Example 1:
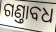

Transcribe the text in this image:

ଗଣ୍ତାବଧ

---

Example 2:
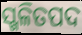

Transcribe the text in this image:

ସ୍ଖଳିତପଦ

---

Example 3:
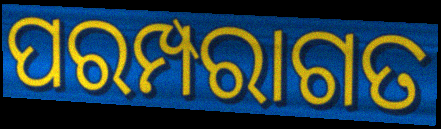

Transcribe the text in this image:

ପରମ୍ପରାଗତ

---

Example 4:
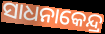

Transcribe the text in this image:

ସାଧନାକେନ୍ଦ୍ର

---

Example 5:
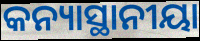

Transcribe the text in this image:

କନ୍ୟାସ୍ଥାନୀୟା